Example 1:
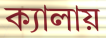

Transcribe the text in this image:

ক্যালায়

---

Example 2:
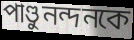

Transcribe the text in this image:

পাণ্ডুনন্দনকে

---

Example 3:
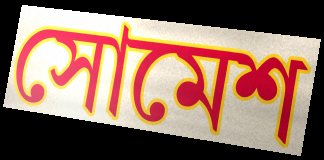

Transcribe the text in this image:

সোমেশ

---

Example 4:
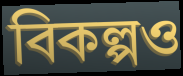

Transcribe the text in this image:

বিকল্পও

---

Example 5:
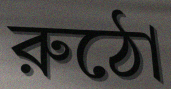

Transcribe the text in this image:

রুঠো